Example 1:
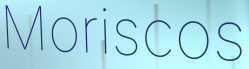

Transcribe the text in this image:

Moriscos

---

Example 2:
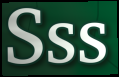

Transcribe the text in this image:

Sss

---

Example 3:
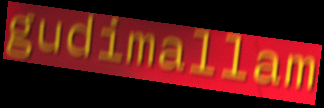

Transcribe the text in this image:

gudimallam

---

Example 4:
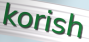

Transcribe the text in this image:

korish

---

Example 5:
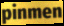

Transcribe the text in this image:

pinmen